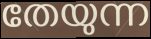
തേയുന്ന